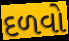
દળવો